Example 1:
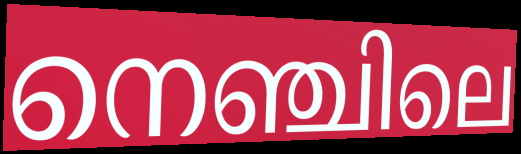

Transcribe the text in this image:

നെഞ്ചിലെ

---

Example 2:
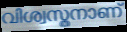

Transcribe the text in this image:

വിശ്വസ്തനാണ്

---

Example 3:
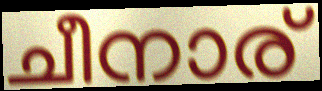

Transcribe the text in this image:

ചീനാര്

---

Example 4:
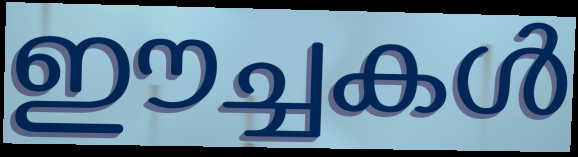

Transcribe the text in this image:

ഈച്ചകൾ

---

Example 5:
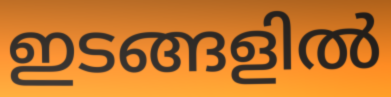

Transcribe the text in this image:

ഇടങ്ങളിൽ